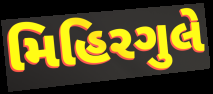
મિહિરગુલે